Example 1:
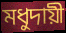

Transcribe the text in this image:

মধুদায়ী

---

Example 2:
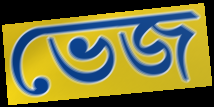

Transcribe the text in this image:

ভেজ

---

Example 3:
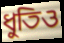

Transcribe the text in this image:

ধুতিও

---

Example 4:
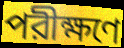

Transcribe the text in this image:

পরীক্ষণে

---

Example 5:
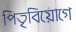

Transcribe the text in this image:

পিতৃবিয়োগে